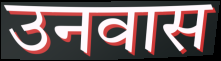
उनवास